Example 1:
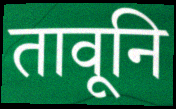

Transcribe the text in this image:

तावूनि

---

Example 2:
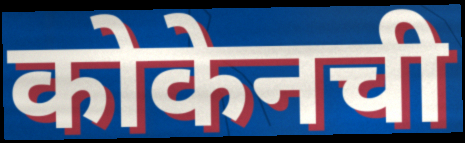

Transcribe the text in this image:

कोकेनची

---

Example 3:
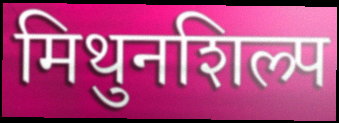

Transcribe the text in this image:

मिथुनशिल्प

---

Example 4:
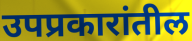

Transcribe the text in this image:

उपप्रकारांतील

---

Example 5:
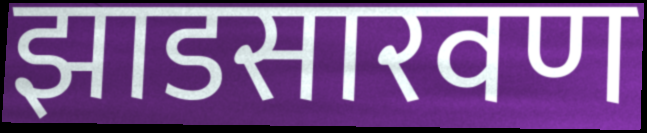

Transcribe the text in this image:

झाडसारवण